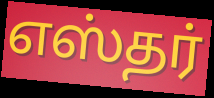
எஸ்தர்